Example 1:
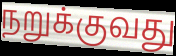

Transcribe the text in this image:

நறுக்குவது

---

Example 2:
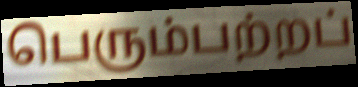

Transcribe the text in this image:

பெரும்பற்றப்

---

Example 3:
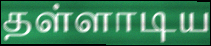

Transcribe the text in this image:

தள்ளாடிய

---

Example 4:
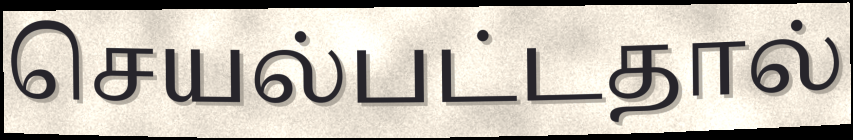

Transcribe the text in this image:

செயல்பட்டதால்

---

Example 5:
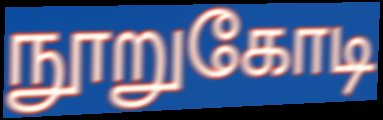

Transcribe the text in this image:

நூறுகோடி